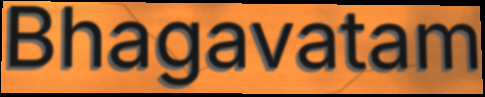
Bhagavatam